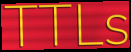
TTLs